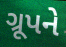
ગ્રૂપને